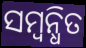
ସମ୍ଵନ୍ଧିତ